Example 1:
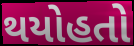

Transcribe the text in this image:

થયોહતો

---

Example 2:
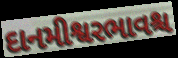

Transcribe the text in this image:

દાનમીશ્વરભાવશ્ચ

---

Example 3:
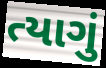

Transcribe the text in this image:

ત્યાગું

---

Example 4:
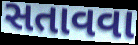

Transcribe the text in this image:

સતાવવા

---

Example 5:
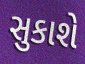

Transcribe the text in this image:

સુકાશે